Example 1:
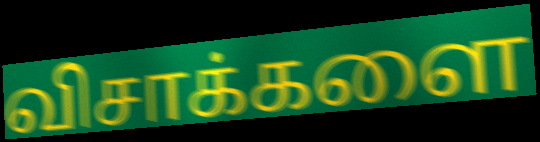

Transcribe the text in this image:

விசாக்களை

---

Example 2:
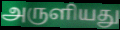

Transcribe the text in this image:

அருளியது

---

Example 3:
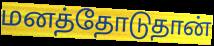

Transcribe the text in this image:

மனத்தோடுதான்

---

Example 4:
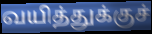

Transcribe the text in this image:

வயித்துக்குச்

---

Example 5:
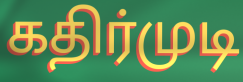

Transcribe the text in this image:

கதிர்முடி